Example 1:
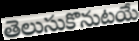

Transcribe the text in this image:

తెలుసుకొనుటయే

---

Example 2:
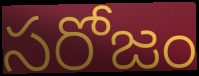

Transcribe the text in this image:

సరోజం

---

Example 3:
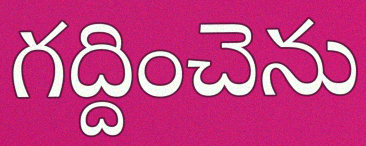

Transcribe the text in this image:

గద్దించెను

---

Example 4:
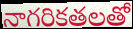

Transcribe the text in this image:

నాగరికతలతో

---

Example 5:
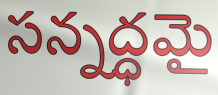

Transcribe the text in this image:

సన్నద్ధమై